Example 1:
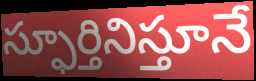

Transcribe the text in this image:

స్ఫూర్తినిస్తూనే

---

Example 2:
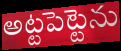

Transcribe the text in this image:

అట్టపెట్టెను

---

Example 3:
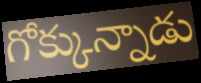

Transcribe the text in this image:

గోక్కున్నాడు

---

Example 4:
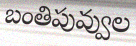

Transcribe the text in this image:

బంతిపువ్వుల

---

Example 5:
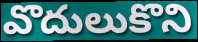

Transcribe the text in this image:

వొదులుకొని